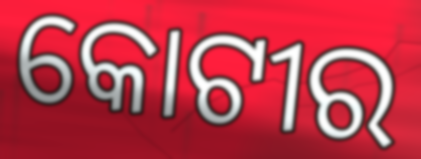
କୋଟୀର